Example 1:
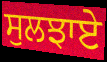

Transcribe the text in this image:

ਸੁਲਝਾਏ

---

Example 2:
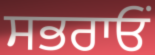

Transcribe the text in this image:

ਸਭਰਾਓਂ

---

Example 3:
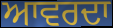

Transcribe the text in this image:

ਆਵਰਦਾ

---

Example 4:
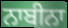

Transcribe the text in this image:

ਨਾਬੀਨਾ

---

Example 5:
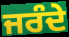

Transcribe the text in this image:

ਜਰੰਦੇ